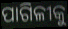
ପାଗିଳୀକୁ